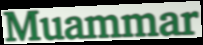
Muammar